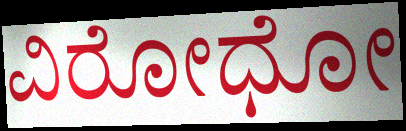
ವಿರೋಧೋ